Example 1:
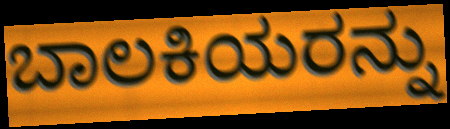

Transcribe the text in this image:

ಬಾಲಕಿಯರನ್ನು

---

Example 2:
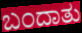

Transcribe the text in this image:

ಬಂದಾತು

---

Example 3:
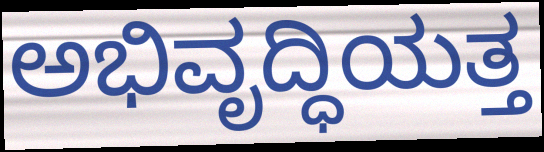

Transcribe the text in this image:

ಅಭಿವೃದ್ಧಿಯತ್ತ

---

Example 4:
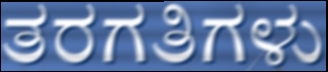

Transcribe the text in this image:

ತರಗತಿಗಳು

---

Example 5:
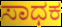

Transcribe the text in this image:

ಸಾಧಕ